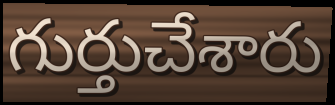
గుర్తుచేశారు